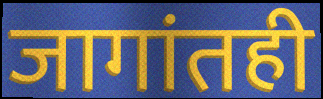
जागांतही